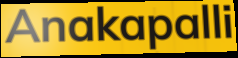
Anakapalli